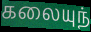
கலையுந்